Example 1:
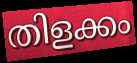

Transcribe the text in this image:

തിളക്കം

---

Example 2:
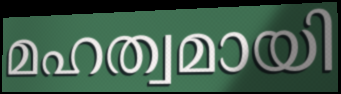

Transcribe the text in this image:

മഹത്വമായി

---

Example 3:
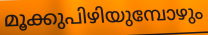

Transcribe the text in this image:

മൂക്കുപിഴിയുമ്പോഴും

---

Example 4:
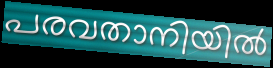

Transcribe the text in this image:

പരവതാനിയിൽ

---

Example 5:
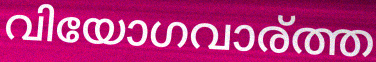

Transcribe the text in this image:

വിയോഗവാര്ത്ത